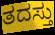
ತದಸ್ತು